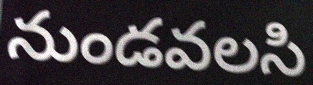
నుండవలసి